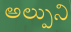
అల్పుని